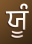
ਯੂੰ